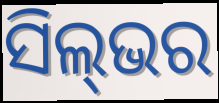
ସିଲ୍‌ଭର